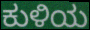
ಕುಳಿಯ